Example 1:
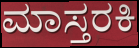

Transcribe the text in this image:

ಮಾಸ್ತರಕಿ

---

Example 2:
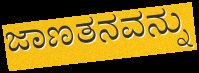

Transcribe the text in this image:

ಜಾಣತನವನ್ನು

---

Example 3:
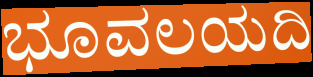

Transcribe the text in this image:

ಭೂವಲಯದಿ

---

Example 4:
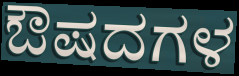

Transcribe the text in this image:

ಔಷದಗಳ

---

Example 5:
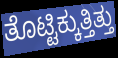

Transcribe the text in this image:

ತೊಟ್ಟಿಕ್ಕುತ್ತಿತ್ತು